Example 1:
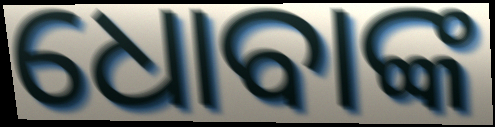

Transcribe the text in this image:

ଧୋବାଙ୍କ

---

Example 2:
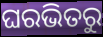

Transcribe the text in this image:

ଘରଭିତରୁ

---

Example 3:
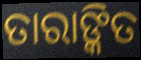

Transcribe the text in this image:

ତାରାଙ୍କିତ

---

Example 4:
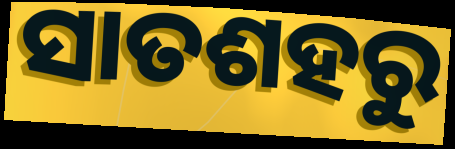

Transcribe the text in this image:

ସାତଶହରୁ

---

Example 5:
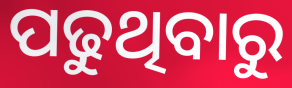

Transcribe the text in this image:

ପଢୁଥିବାରୁ